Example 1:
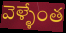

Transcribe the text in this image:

వెళ్ళేంత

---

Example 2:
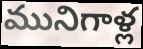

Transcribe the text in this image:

మునిగాళ్ల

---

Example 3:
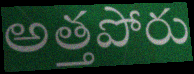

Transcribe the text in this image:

అత్తపోరు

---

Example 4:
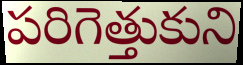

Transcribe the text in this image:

పరిగెత్తుకుని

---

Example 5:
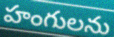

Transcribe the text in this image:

హంగులను